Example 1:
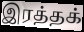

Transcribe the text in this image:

இரத்தக்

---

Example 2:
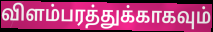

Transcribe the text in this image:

விளம்பரத்துக்காகவும்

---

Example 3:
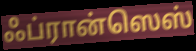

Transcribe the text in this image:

ஃப்ரான்ஸெஸ்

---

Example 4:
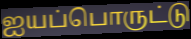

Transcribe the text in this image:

ஐயப்பொருட்டு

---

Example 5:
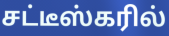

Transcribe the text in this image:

சட்டீஸ்கரில்